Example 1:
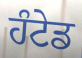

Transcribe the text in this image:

ਹੰਟੇਡ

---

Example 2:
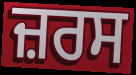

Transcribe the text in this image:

ਜ਼ਰਸ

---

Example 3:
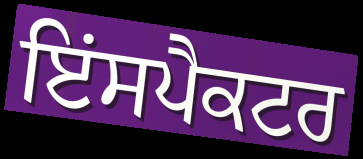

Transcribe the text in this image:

ਇਂਸਪੈਕਟਰ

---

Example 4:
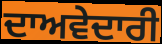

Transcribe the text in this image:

ਦਾਅਵੇਦਾਰੀ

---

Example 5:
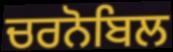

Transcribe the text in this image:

ਚਰਨੋਬਿਲ